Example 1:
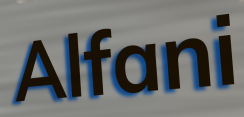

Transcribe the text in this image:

Alfani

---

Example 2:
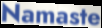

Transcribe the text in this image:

Namaste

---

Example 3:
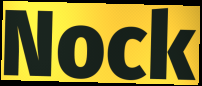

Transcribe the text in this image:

Nock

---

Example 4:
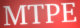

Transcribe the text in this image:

MTPE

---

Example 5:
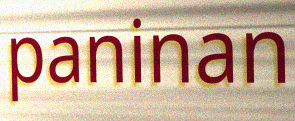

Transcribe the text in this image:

paninan